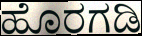
ಹೊರಗಡಿ